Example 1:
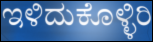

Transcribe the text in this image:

ಇಳಿದುಕೊಳ್ಳಿರಿ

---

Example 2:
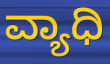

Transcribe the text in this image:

ವ್ಯಾಧಿ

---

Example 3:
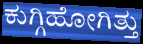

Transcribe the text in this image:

ಕುಗ್ಗಿಹೋಗಿತ್ತು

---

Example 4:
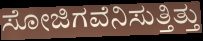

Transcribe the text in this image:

ಸೋಜಿಗವೆನಿಸುತ್ತಿತ್ತು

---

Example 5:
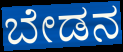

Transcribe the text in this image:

ಬೇಡನ